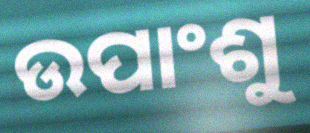
ଉପାଂଶୁ